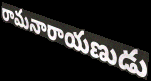
రామనారాయణుడు